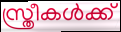
സ്ത്രീകൾക്ക്